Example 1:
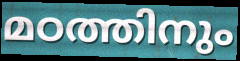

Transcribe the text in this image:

മഠത്തിനും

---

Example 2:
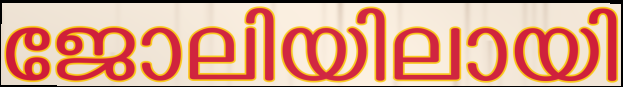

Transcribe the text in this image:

ജോലിയിലായി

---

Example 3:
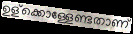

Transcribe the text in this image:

ഉള്ക്കൊള്ളേണ്ടതാണ്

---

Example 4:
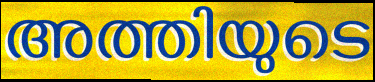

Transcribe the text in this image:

അത്തിയുടെ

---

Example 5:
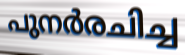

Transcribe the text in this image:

പുനർരചിച്ച